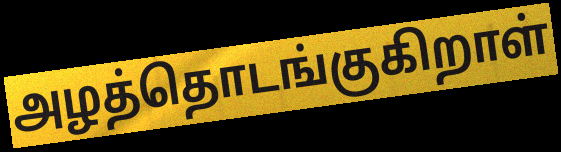
அழத்தொடங்குகிறாள்